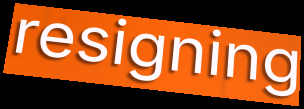
resigning